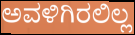
ಅವಳಿಗಿರಲಿಲ್ಲ